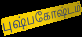
புஷ்பகோஷ்டம்